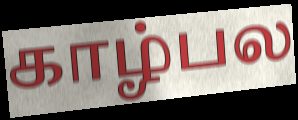
காழ்பல